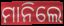
ମାନିଲେ